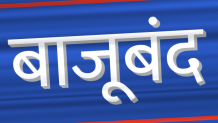
बाजूबंद